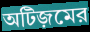
অটিজ়মের